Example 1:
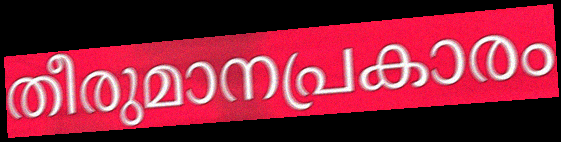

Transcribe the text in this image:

തീരുമാനപ്രകാരം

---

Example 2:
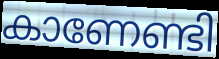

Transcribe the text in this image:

കാണേണ്ടി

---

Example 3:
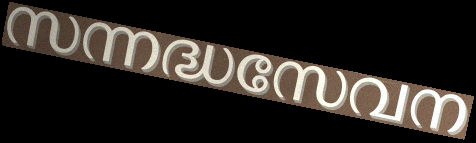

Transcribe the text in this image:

സന്നദ്ധസേവന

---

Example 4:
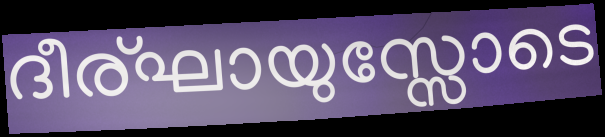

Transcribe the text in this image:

ദീര്ഘായുസ്സോടെ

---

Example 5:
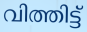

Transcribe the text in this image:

വിത്തിട്ട്